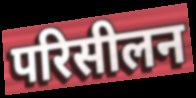
परिसीलन